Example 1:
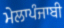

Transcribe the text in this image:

ਮੇਲਾਪੰਜਾਬੀ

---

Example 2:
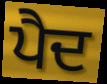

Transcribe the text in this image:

ਪੈਦ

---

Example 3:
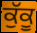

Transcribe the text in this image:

ਕੁੱਕੂ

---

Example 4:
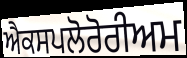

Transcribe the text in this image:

ਐਕਸਪਲੋਰੋਰੀਅਮ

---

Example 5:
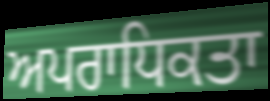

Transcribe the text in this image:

ਅਪਰਾਧਿਕਤਾ